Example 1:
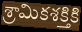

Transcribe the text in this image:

శ్రామికశక్తికి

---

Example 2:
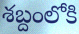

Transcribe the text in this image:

శబ్దంలోకి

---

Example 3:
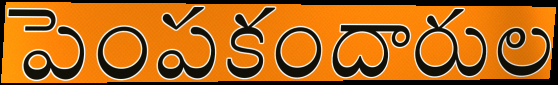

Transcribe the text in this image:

పెంపకందారుల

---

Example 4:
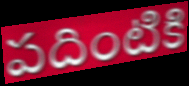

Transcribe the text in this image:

పదింటికి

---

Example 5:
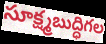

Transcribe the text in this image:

సూక్ష్మబుద్ధిగల